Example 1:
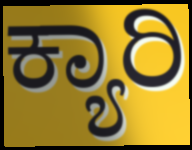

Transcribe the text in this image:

ಕ್ಯಾರಿ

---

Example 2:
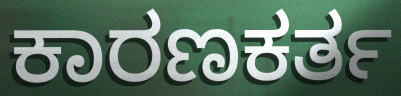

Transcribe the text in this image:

ಕಾರಣಕರ್ತ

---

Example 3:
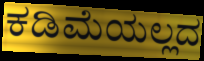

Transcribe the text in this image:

ಕಡಿಮೆಯಲ್ಲದ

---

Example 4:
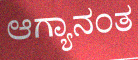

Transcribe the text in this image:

ಆಗ್ಯಾನಂತ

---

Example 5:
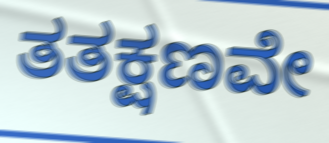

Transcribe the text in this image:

ತತಕ್ಷಣವೇ